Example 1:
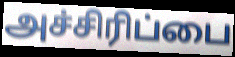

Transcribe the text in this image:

அச்சிரிப்பை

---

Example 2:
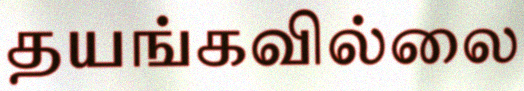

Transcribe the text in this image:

தயங்கவில்லை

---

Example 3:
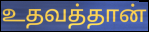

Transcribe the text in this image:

உதவத்தான்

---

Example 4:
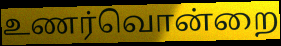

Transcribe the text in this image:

உணர்வொன்றை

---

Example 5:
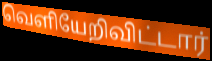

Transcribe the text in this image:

வெளியேறிவிட்டார்